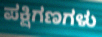
ಪಕ್ಷಿಗಣಗಳು